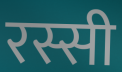
रस्सी